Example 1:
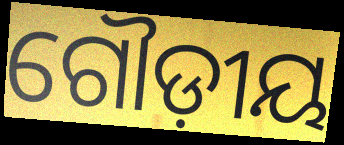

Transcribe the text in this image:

ଗୌଡ଼ୀୟ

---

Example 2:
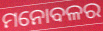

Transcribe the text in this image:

ମନୋବଳର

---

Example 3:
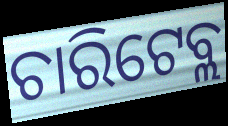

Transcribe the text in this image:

ଚାରିଟେବ୍ଲ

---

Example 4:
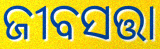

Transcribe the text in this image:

ଜୀବସତ୍ତା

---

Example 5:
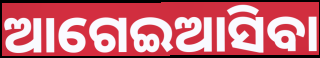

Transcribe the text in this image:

ଆଗେଇଆସିବା